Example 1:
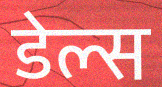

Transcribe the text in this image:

डेल्स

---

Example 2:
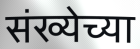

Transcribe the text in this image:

संख्येच्या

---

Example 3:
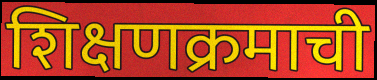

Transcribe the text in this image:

शिक्षणक्रमाची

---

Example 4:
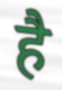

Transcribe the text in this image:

है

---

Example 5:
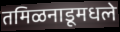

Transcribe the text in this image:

तमिळनाडूमधले